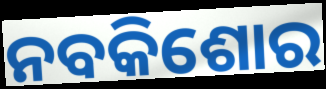
ନବକିଶୋର